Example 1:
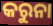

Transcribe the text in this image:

କରୁନା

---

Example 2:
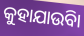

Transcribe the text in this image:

କୁହାଯାଉିବା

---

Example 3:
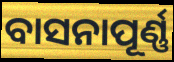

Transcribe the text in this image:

ବାସନାପୂର୍ଣ୍ଣ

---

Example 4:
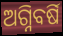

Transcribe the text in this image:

ଅଗ୍ନିବର୍ଷି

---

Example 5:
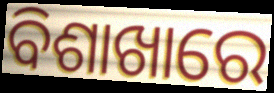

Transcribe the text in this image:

ବିଶାଖାରେ